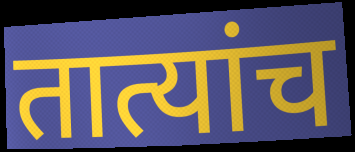
तात्यांच